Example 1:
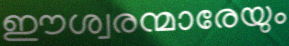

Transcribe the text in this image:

ഈശ്വരന്മാരേയും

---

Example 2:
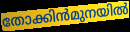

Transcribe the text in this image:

തോക്കിൻമുനയിൽ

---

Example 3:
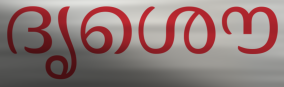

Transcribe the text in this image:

ദൃശൌ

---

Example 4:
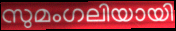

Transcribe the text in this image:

സുമംഗലിയായി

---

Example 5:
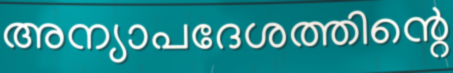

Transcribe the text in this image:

അന്യാപദേശത്തിന്റെ